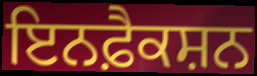
ਇਨਫ਼ੈਕਸ਼ਨ